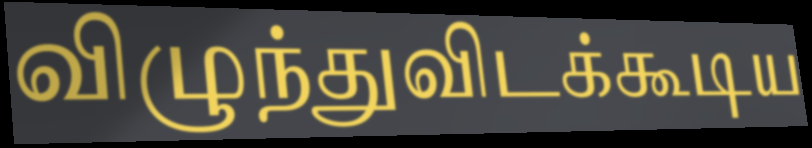
விழுந்துவிடக்கூடிய